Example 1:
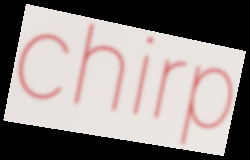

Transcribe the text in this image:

chirp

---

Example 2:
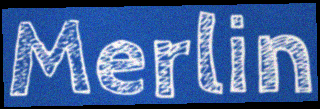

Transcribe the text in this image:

Merlin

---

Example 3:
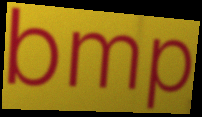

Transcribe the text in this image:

bmp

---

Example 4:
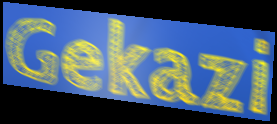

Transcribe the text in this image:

Gekazi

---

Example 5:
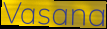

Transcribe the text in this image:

Vasana